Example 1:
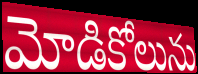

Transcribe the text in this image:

మోడికోలును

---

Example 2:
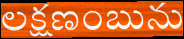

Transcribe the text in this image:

లక్షణంబును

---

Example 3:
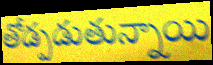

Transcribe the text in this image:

తోడ్పడుతున్నాయి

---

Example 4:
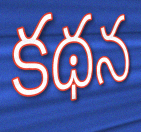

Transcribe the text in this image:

కథన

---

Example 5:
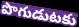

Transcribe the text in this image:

పొగుడుటకు